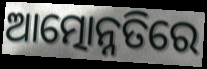
ଆତ୍ମୋନ୍ନତିରେ